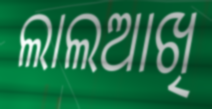
ଲାଲଆଖି